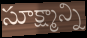
సూక్ష్మాన్ని